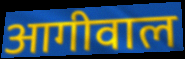
आगीवाल